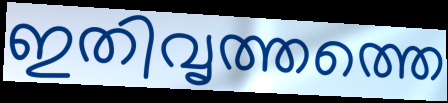
ഇതിവൃത്തത്തെ